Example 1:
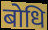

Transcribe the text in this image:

बोधि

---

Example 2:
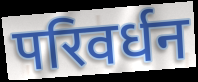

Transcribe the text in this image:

परिवर्धन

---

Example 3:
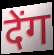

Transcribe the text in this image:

देंग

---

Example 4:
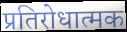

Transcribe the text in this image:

प्रतिरोधात्मक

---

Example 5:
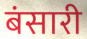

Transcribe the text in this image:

बंसारी